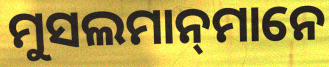
ମୁସଲମାନ୍‌ମାନେ